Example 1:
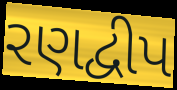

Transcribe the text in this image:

રણદ્વીપ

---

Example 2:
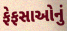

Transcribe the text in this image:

ફેફસાઓનું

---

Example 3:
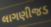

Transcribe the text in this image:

લાગણીજડ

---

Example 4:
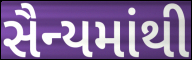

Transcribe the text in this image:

સૈન્યમાંથી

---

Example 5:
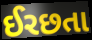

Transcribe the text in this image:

ઈરછતા